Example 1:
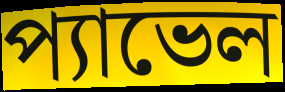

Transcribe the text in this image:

প্যাভেল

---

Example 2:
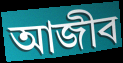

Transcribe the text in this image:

আজীব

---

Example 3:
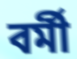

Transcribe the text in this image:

বর্মী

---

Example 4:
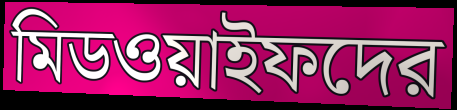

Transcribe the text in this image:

মিডওয়াইফদের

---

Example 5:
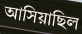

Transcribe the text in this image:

আসিয়াছিল